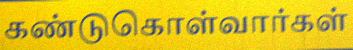
கண்டுகொள்வார்கள்